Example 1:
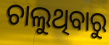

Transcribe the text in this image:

ଚାଲୁଥିବାରୁ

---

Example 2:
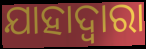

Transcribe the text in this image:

ଯାହାଦ୍ୱାରା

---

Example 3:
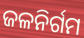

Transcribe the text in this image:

ଜଳନିର୍ଗମ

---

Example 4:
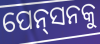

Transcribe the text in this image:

ପେନ୍‌ସନକୁ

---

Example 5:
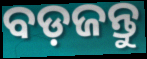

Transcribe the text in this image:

ବଡ଼ଜନ୍ତୁ